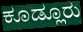
ಕೂಡ್ಲೂರು